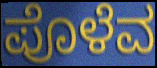
ಪೊಳೆವ